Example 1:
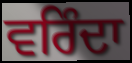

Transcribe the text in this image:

ਵਰਿੰਦਾ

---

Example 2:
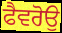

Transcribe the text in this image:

ਫੈਵਰੋਉ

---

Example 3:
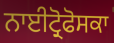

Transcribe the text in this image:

ਨਾਈਟ੍ਰੋਫੋਸਕਾ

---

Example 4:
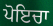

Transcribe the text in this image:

ਪੋਇਚਾ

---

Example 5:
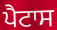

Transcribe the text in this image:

ਪੈਟਾਸ